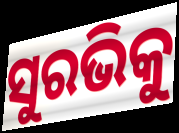
ସୁରଭିକୁ